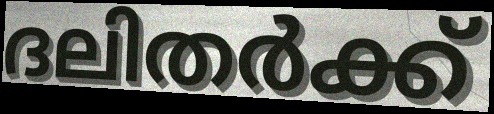
ദലിതർക്ക്